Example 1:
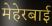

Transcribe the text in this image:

मेहेरबाई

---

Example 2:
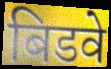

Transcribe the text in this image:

बिडवे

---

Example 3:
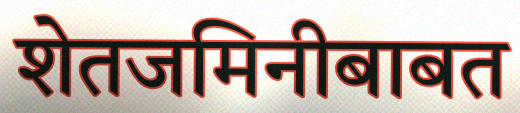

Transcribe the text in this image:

शेतजमिनीबाबत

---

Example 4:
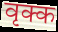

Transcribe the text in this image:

वृक्क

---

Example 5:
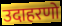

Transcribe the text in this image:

उदाहरणो